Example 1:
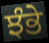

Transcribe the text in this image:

ਝੰਭੇ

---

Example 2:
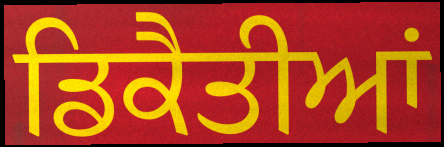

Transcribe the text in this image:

ਡਿਕੈਤੀਆਂ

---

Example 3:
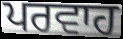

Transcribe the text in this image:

ਪਰਵਾਹ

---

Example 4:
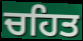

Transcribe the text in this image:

ਚਹਿਤ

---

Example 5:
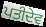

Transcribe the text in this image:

ਪਤੀਦੇਵ